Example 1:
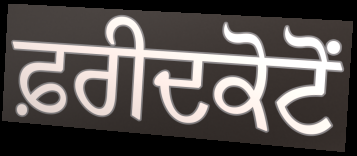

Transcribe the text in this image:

ਫ਼ਰੀਦਕੋਟੋਂ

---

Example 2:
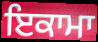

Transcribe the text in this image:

ਇਕਾਮਾ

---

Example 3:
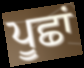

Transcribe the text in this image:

ਪੂਛਾਂ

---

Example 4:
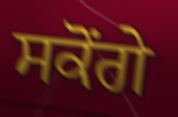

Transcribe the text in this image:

ਸਕੋਂਗੇ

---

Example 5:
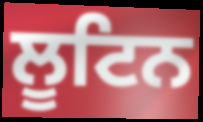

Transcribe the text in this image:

ਲੂਟਿਨ